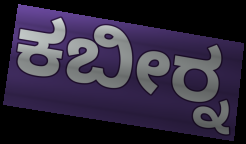
ಕಬೀರ್‍ನ